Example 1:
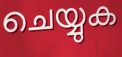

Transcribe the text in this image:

ചെയ്യുക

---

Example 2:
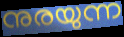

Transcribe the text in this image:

നുരയുന്ന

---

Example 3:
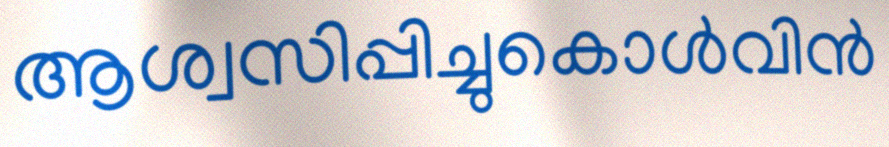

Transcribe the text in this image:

ആശ്വസിപ്പിച്ചുകൊൾവിൻ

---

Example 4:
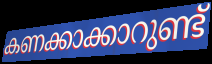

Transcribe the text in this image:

കണക്കാക്കാറുണ്ട്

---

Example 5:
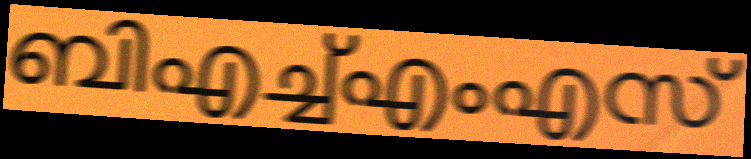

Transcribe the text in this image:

ബിഎച്ച്എംഎസ്